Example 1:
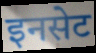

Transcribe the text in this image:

इनसेट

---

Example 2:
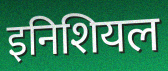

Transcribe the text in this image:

इनिशियल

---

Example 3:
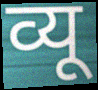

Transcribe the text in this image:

व्यू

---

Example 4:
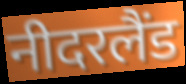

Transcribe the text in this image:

नीदरलैंड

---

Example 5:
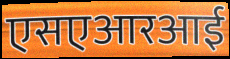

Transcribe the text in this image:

एसएआरआई